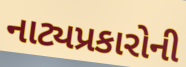
નાટ્યપ્રકારોની